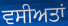
ਵਸੀਅਤਾਂ